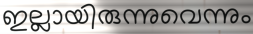
ഇല്ലായിരുന്നുവെന്നും